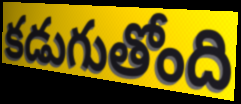
కడుగుతోంది